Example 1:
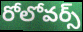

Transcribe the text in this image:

రోలోవర్స్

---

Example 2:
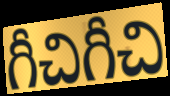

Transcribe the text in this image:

గీచిగీచి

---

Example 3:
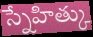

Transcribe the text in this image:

స్నేహిత్కు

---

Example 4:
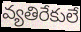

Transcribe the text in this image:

వ్యతిరేకులే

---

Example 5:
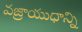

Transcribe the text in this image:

వజ్రాయుధాన్ని